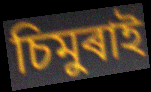
চিমুৰাই